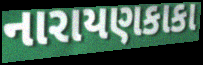
નારાયણકાકા